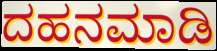
ದಹನಮಾಡಿ